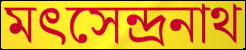
মৎসেন্দ্রনাথ